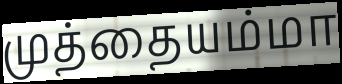
முத்தையம்மா